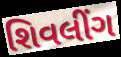
શિવલીંગ